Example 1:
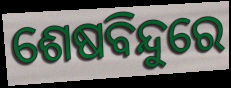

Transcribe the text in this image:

ଶେଷବିନ୍ଦୁରେ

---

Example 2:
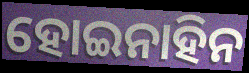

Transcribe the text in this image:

ହୋଇନାହିନ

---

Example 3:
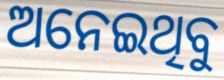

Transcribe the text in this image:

ଅନେଇଥିବୁ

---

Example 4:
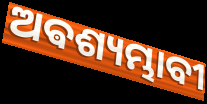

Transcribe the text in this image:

ଅଵଶ୍ୟମ୍ଭାବୀ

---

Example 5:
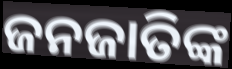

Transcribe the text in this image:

ଜନଜାତିଙ୍କ